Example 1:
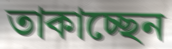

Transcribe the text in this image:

তাকাচ্ছেন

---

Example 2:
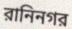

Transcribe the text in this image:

রানিনগর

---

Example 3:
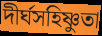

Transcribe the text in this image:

দীর্ঘসহিষ্ণুতা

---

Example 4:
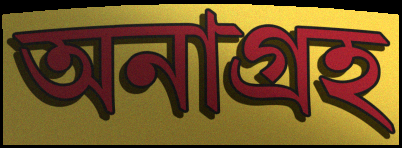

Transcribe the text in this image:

অনাগ্রহ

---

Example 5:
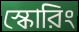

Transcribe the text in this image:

স্কোরিং